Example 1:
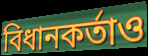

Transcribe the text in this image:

বিধানকর্তাও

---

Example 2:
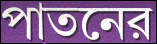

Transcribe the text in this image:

পাতনের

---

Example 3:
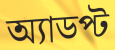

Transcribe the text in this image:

অ্যাডপ্ট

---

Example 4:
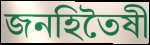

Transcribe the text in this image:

জনহিতৈষী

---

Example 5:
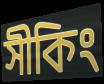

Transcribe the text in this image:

সীকিং